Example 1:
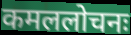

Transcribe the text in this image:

कमललोचनः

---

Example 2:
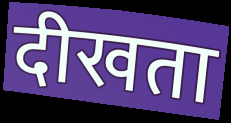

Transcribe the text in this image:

दीखता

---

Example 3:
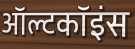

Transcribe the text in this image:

ऑल्टकॉइंस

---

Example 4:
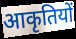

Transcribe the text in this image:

आकृतियों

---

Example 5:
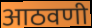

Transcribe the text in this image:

आठवणी